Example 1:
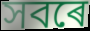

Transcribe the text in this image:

সবৰে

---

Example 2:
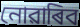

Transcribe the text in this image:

নোৱাৰিব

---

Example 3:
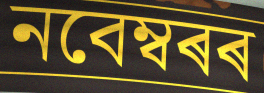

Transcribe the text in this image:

নবেম্বৰৰ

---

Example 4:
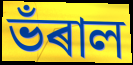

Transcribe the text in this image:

ভঁৰাল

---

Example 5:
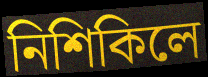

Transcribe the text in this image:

নিশিকিলে